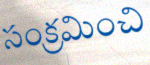
సంక్రమించి